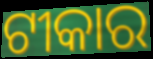
ଟୀକାର